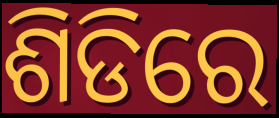
ଶିଡିରେ